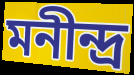
মনীন্দ্র